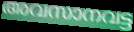
അവസാനവട്ട